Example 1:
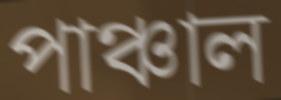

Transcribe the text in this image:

পাঞ্চাল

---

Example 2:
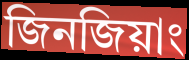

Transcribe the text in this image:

জিনজিয়াং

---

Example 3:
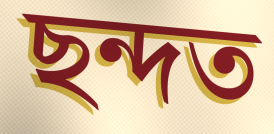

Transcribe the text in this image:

ছন্দত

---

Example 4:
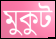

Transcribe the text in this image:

মুকুট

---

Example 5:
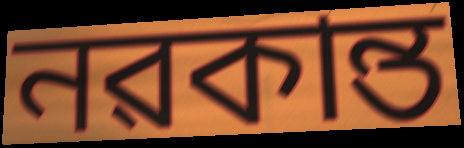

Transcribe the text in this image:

নৱকান্ত